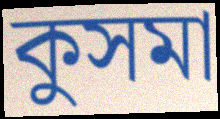
কুসমা